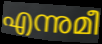
എന്നുമീ